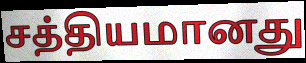
சத்தியமானது